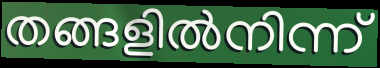
തങ്ങളിൽനിന്ന്